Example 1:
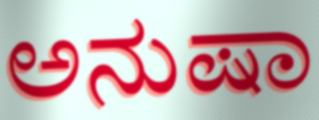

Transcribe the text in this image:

ಅನುಷಾ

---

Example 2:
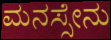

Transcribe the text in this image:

ಮನಸ್ಸೇನು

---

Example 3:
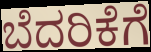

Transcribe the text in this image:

ಬೆದರಿಕೆಗೆ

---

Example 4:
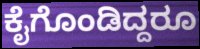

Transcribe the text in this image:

ಕೈಗೊಂಡಿದ್ದರೂ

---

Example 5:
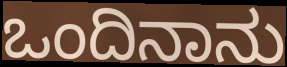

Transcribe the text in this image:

ಒಂದಿನಾನು